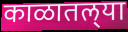
काळातल्या